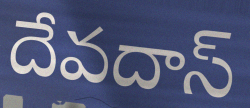
దేవదాస్